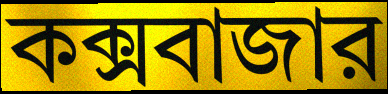
কক্সবাজার